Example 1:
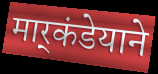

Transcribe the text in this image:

मार्कंडेयाने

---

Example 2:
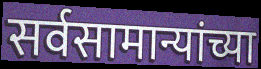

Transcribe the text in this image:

सर्वसामान्यांच्या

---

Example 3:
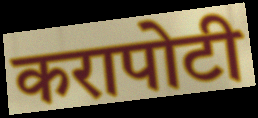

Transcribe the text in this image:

करापोटी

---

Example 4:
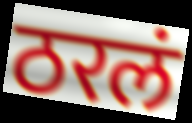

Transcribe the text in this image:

ठरलं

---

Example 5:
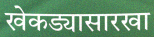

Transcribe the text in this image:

खेकड्यासारखा